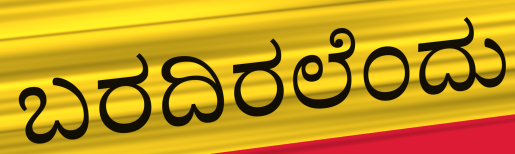
ಬರದಿರಲೆಂದು